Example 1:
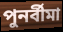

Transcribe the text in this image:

পুনর্বীমা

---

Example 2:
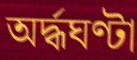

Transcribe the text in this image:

অর্দ্ধঘণ্টা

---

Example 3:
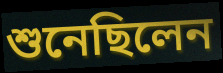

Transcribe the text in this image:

শুনেছিলেন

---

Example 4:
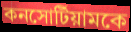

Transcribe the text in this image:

কনসোর্টিয়ামকে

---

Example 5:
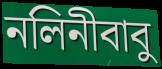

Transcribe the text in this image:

নলিনীবাবু